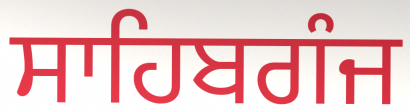
ਸਾਹਿਬਗੰਜ